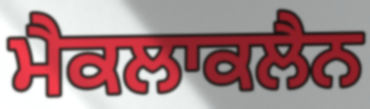
ਮੈਕਲਾਕਲੈਨ